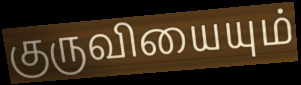
குருவியையும்